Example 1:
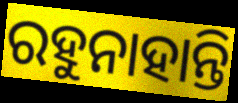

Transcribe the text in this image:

ରହୁନାହାନ୍ତି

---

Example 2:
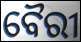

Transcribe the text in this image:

ବୈରୀ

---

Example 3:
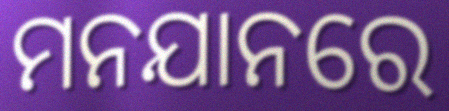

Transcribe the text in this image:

ମନଯାନରେ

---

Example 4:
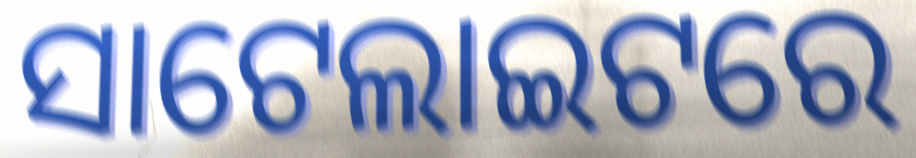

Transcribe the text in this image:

ସାଟେଲାଇଟରେ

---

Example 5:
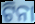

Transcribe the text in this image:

ଟିନା